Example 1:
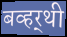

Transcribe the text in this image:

बव्हर्थी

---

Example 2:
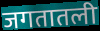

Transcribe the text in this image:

जगतातली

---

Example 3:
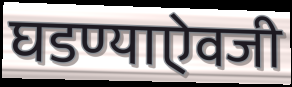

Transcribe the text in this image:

घडण्याऐवजी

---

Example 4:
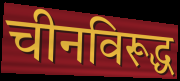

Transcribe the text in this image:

चीनविरूद्ध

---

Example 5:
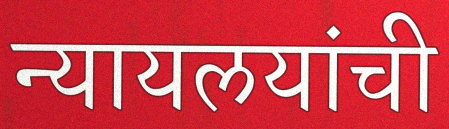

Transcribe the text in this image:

न्यायलयांची